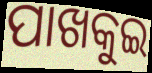
ପାଖକୁଇ